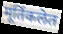
मूर्तिकलेत